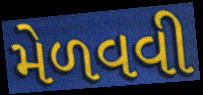
મેળવવી